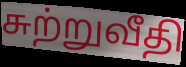
சுற்றுவீதி